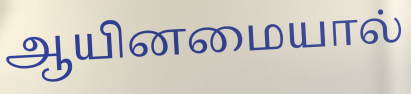
ஆயினமையால்